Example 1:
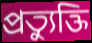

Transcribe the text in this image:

প্রত্যুক্তি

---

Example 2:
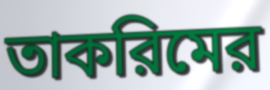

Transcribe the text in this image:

তাকরিমের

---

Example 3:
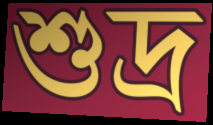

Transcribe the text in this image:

শুদ্র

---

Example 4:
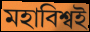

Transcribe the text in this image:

মহাবিশ্বই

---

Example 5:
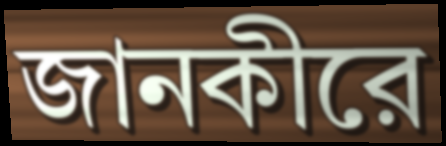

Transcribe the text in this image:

জানকীরে